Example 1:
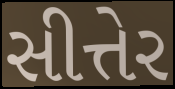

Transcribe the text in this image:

સીત્તેર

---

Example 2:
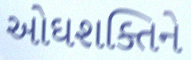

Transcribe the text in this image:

ઓઘશક્તિને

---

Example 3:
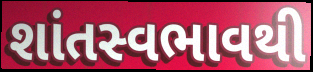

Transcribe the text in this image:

શાંતસ્વભાવથી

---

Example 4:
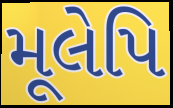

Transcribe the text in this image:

મૂલેપિ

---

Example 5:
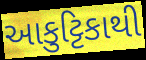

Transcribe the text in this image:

આકુટ્ટિકાથી